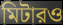
মিটারও